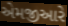
એમજીઆરે